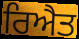
ਰਿਐਤ